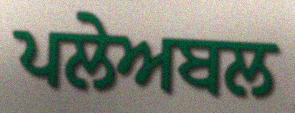
ਪਲੇਅਬਲ